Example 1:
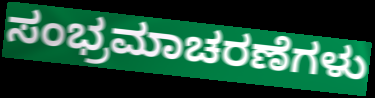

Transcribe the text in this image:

ಸಂಭ್ರಮಾಚರಣೆಗಳು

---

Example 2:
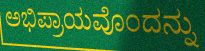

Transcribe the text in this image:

ಅಭಿಪ್ರಾಯವೊಂದನ್ನು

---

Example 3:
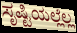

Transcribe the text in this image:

ಸೃಷ್ಟಿಯಲ್ಲೆಲ್ಲ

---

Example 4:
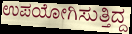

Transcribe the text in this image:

ಉಪಯೋಗಿಸುತ್ತಿದ್ದ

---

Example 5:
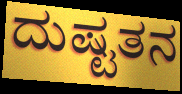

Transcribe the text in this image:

ದುಷ್ಟತನ